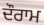
ਦੌਰਾਮ